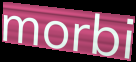
morbi